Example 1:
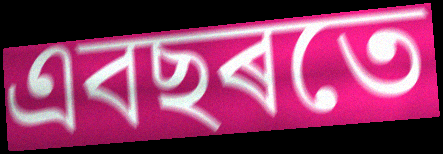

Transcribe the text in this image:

এবছৰতে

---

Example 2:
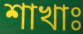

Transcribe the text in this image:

শাখাঃ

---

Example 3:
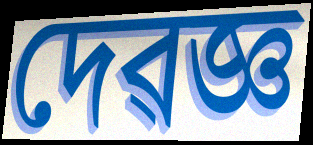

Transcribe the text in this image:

দেৱজ্ঞ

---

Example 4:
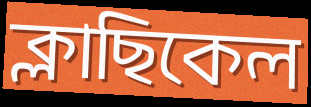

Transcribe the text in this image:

ক্লাছিকেল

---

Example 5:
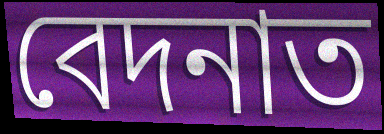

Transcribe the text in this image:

বেদনাত